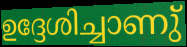
ഉദ്ദേശിച്ചാണു്